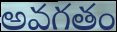
అవగతం